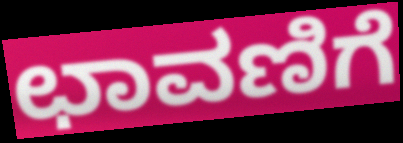
ಛಾವಣಿಗೆ